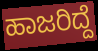
ಹಾಜರಿದ್ದೆ